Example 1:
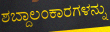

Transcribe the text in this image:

ಶಬ್ದಾಲಂಕಾರಗಳನ್ನು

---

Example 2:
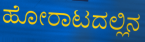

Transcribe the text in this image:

ಹೋರಾಟದಲ್ಲಿನ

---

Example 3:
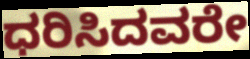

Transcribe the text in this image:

ಧರಿಸಿದವರೇ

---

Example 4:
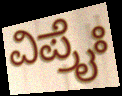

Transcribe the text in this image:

ವಿಪ್ರೈಃ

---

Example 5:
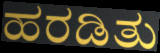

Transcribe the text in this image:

ಹರಡಿತು